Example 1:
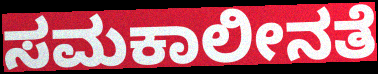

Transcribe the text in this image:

ಸಮಕಾಲೀನತೆ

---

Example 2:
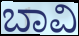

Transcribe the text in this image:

ಬಾವಿ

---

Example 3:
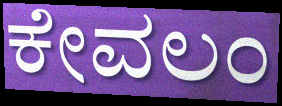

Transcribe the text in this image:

ಕೇವಲಂ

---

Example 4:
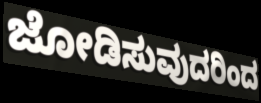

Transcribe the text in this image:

ಜೋಡಿಸುವುದರಿಂದ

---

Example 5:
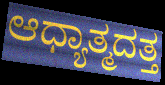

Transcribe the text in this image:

ಆಧ್ಯಾತ್ಮದತ್ತ